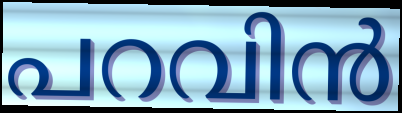
പറവിൻ